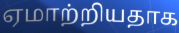
ஏமாற்றியதாக